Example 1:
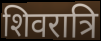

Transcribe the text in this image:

शिवरात्रि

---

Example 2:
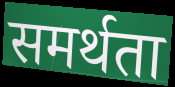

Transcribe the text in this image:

समर्थता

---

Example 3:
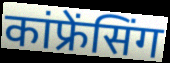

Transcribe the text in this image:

कांफ्रेंसिंग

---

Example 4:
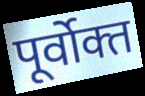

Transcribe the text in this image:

पूर्वोक्‍त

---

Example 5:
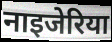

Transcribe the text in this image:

नाइजेरिया